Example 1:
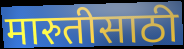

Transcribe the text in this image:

मारुतीसाठी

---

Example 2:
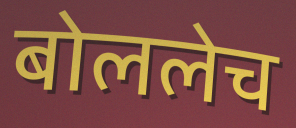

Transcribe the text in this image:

बोललेच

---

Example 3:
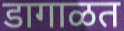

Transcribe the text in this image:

डागाळत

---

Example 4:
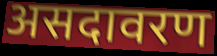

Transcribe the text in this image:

असदावरण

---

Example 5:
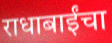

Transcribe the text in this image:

राधाबाईंचा